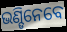
ଭଣ୍ଡିନେବେ